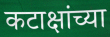
कटाक्षांच्या